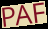
PAF